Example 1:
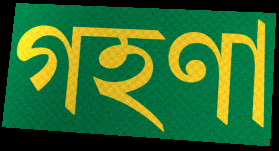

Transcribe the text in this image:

গহণা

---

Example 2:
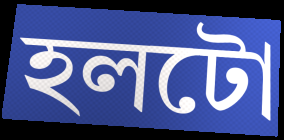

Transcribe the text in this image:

হলটো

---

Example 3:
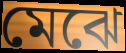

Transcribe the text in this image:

মেঝে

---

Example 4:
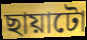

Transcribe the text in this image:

ছায়াটো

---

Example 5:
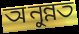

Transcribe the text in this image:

অনুন্নত